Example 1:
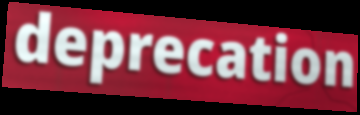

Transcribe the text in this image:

deprecation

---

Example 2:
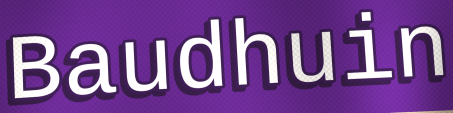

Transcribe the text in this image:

Baudhuin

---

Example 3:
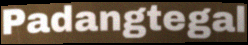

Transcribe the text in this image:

Padangtegal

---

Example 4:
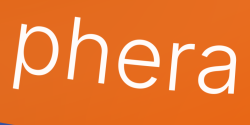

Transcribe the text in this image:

phera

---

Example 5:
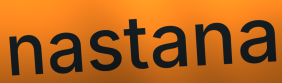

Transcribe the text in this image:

nastana